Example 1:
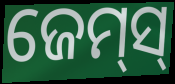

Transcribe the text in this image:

ଜେମ୍‌ସ୍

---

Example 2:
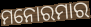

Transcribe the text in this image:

ମନୋରମାର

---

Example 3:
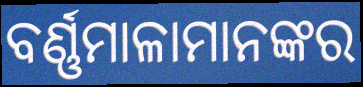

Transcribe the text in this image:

ବର୍ଣ୍ଣମାଳାମାନଙ୍କର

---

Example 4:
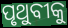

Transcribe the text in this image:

ପୃଥୁବୀକୁ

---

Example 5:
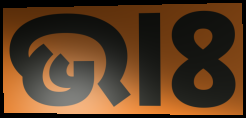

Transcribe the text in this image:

ଭାଃ